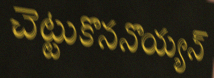
చెట్టుకొననొయ్యన్